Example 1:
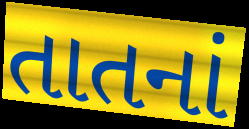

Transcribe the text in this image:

તાતનાં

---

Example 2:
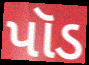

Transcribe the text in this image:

પૉડ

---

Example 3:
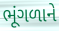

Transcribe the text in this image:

ભૂંગળાને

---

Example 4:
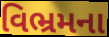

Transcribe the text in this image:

વિભ્રમના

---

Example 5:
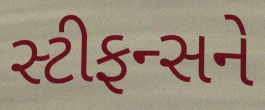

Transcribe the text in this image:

સ્ટીફન્સને